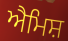
ਐਮਿਸ਼